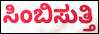
ಸಿಂಬಿಸುತ್ತಿ